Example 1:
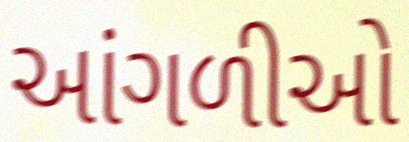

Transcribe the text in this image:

આંગળીઓ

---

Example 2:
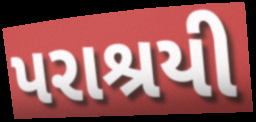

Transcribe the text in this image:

પરાશ્રયી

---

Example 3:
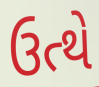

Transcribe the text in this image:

ઉત્થે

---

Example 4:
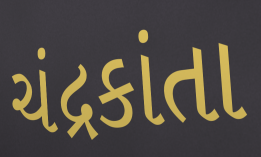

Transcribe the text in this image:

ચંદ્રકાંતા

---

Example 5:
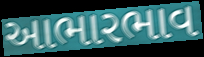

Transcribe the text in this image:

આભારભાવ